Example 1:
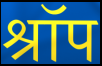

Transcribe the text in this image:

श्रॉप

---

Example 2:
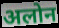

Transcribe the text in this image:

अलोन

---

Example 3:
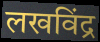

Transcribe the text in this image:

लखविंद्र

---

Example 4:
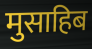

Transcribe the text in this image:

मुसाहिब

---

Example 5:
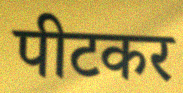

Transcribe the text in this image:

पीटकर